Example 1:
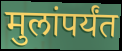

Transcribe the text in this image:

मुलांपर्यंत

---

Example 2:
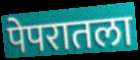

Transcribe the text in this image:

पेपरातला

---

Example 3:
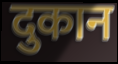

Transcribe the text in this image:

दुकान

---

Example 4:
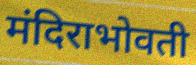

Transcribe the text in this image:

मंदिराभोवती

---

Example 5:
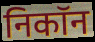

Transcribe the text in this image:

निकॉन